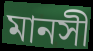
মানসী